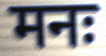
मनः